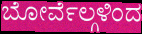
ಬೋರ್ವೆಲ್ಗಳಿಂದ